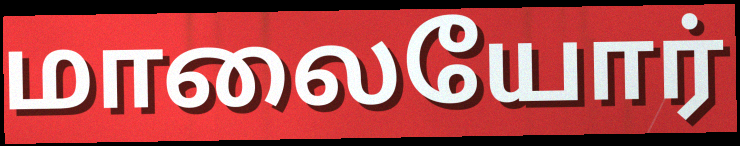
மாலையோர்